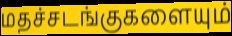
மதச்சடங்குகளையும்